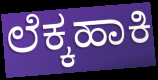
ಲೆಕ್ಕಹಾಕಿ